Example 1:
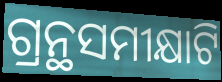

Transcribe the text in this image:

ଗ୍ରନ୍ଥସମୀକ୍ଷାଟି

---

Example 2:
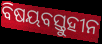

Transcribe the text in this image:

ବିଷୟବସ୍ତୁହୀନ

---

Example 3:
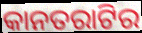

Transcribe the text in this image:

କାନତରାଟିର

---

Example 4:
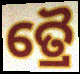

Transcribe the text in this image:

ତ୍ରୈ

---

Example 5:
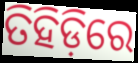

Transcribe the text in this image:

ତିହିଡ଼ିରେ